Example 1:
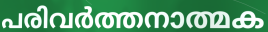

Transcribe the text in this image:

പരിവർത്തനാത്മക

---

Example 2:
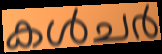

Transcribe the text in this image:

കൾചർ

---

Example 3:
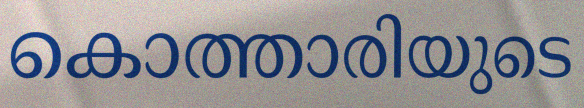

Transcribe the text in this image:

കൊത്താരിയുടെ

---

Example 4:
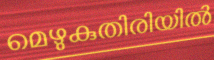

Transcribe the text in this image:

മെഴുകുതിരിയിൽ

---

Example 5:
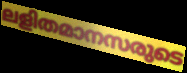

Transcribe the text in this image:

ലളിതമാനസരുടെ